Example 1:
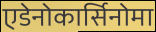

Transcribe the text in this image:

एडेनोकार्सिनोमा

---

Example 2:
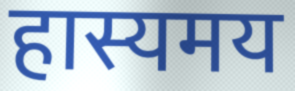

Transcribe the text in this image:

हास्यमय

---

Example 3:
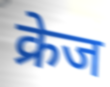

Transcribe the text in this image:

क्रेज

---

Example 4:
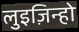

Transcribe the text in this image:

लुइज़िन्हो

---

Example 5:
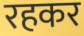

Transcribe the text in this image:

रहकर